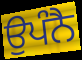
ਉਪੰਨੈ